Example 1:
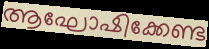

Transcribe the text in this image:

ആഘോഷിക്കേണ്ട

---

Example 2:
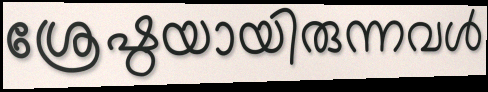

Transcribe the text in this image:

ശ്രേഷ്ഠയായിരുന്നവൾ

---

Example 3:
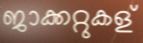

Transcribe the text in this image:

ജാക്കറ്റുകള്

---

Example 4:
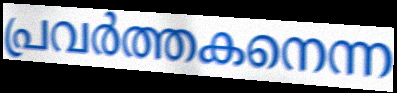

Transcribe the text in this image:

പ്രവർത്തകനെന്ന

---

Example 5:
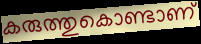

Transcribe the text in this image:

കരുത്തുകൊണ്ടാണ്